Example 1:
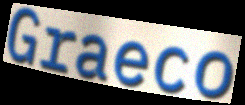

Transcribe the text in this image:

Graeco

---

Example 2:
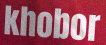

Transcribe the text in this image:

khobor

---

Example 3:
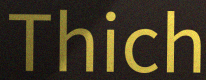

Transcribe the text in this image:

Thich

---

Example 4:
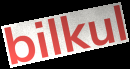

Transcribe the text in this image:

bilkul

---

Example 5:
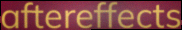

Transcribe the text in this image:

aftereffects